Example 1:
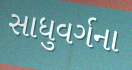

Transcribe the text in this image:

સાધુવર્ગના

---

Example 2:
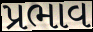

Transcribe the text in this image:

પ્રભાવ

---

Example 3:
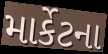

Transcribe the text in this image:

માર્કેટના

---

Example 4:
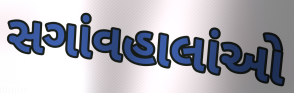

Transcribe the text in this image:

સગાંવહાલાંઓ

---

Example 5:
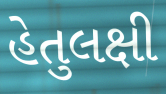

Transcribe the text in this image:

હેતુલક્ષી